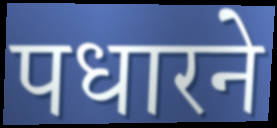
पधारने